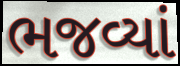
ભજવ્યાં